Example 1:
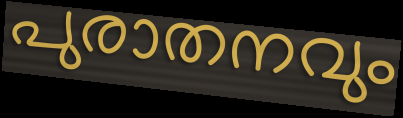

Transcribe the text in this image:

പുരാതനവും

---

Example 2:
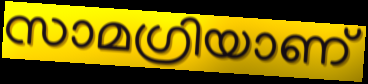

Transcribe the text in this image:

സാമഗ്രിയാണ്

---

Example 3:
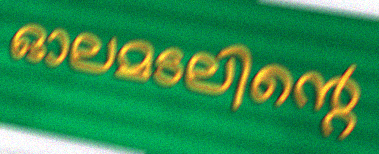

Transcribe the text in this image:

ഓലമടലിന്റെ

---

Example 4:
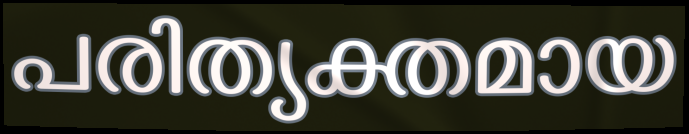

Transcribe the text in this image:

പരിത്യക്തമായ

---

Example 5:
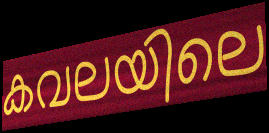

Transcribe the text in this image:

കവലയിലെ